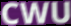
CWU